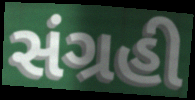
સંગ્રહી